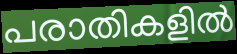
പരാതികളിൽ